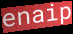
enaip